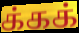
க்கக்